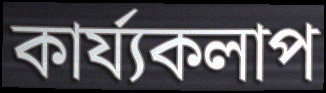
কার্য্যকলাপ